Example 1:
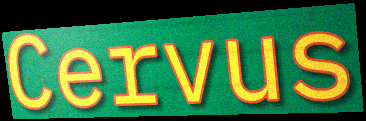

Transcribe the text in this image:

Cervus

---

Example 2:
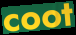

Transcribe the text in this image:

coot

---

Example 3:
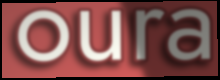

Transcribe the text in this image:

oura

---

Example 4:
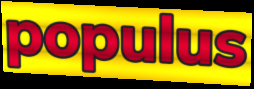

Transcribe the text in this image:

populus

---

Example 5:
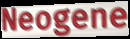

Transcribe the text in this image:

Neogene